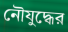
নৌযুদ্ধের